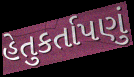
હેતુકર્તાપણું